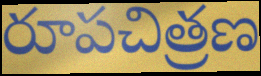
రూపచిత్రణ